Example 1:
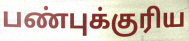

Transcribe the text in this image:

பண்புக்குரிய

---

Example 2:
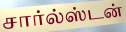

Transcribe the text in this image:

சார்ல்ஸ்டன்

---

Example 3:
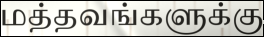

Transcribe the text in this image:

மத்தவங்களுக்கு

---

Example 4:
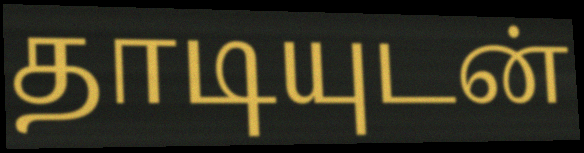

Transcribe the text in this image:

தாடியுடன்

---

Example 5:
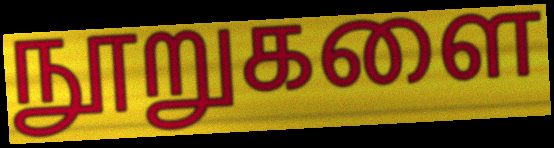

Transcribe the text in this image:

நூறுகளை